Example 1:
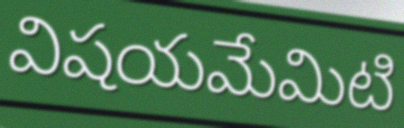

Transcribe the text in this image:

విషయమేమిటి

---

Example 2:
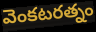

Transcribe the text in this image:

వెంకటరత్నం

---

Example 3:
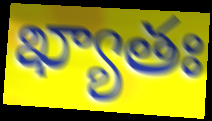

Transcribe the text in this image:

ఖ్యాతః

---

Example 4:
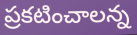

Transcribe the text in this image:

ప్రకటించాలన్న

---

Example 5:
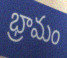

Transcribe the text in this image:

భ్రామం